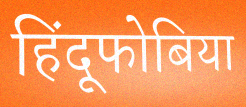
हिंदूफोबिया